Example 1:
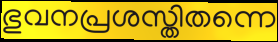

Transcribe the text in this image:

ഭുവനപ്രശസ്തിതന്നെ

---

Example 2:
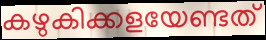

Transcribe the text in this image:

കഴുകിക്കളയേണ്ടത്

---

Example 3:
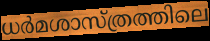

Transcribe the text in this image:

ധർമശാസ്ത്രത്തിലെ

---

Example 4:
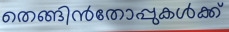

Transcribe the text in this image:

തെങ്ങിൻതോപ്പുകൾക്ക്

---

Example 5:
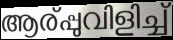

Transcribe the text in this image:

ആര്പ്പുവിളിച്ച്